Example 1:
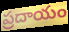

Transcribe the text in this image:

ప్రదాయం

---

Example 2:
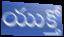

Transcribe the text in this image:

యుక్తో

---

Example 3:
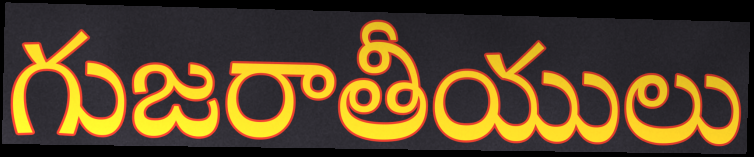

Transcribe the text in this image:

గుజరాతీయులు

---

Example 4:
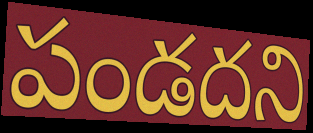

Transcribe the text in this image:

పండదని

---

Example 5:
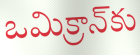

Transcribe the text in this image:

ఒమిక్రాన్‌కు